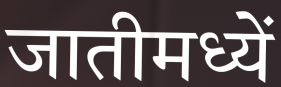
जातीमध्यें